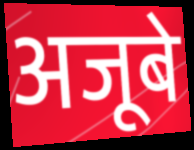
अजूबे